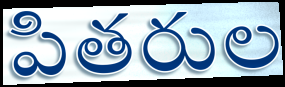
పితరుల